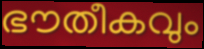
ഭൗതീകവും